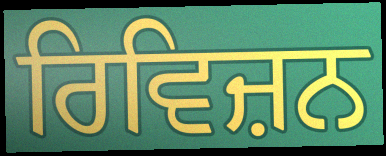
ਰਿਵਿਜ਼ਨ